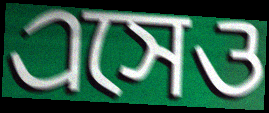
এসেও